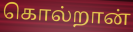
கொல்றான்